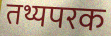
तथ्यपरक